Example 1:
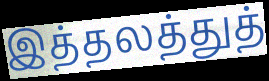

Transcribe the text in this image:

இத்தலத்துத்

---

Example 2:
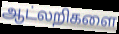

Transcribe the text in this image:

ஆட்லறிகளை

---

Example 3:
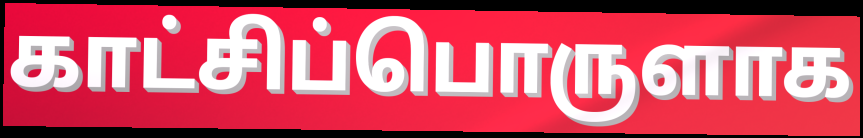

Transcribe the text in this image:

காட்சிப்பொருளாக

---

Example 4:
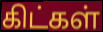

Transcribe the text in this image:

கிட்கள்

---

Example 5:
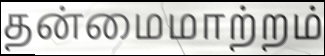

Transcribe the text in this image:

தன்மைமாற்றம்